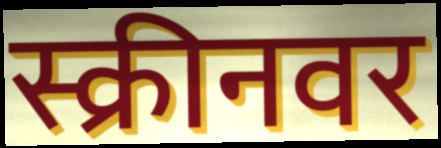
स्क्रीनवर